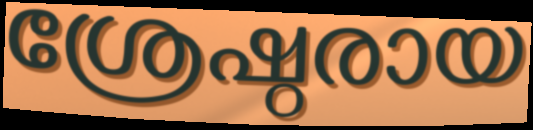
ശ്രേഷ്ഠരായ